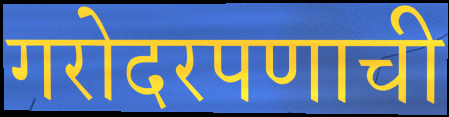
गरोदरपणाची